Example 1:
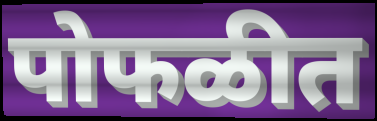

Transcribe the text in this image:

पोफळीत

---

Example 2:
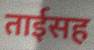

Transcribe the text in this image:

ताईसह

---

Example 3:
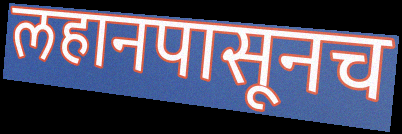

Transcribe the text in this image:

लहानपासूनच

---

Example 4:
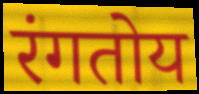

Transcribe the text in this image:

रंगतोय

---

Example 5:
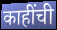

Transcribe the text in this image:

काहींची